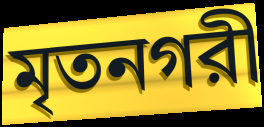
মৃতনগরী